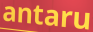
antaru